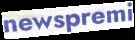
newspremi